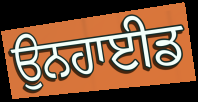
ਉਨਹਾਈਡ